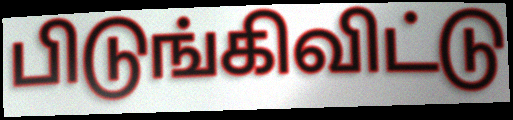
பிடுங்கிவிட்டு